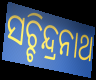
ସଚ୍ଚିନ୍ଦ୍ରନାଥ